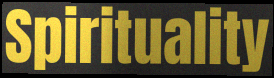
Spirituality